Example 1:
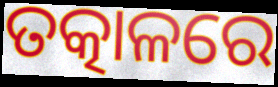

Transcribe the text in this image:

ତତ୍କାଳରେ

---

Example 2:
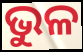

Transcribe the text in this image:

ଭୁଳ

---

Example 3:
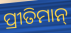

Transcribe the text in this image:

ପ୍ରୀତିମାନ୍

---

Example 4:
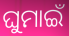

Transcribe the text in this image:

ଘୁମାଇଁ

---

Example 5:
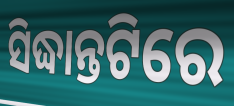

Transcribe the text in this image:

ସିଦ୍ଧାନ୍ତଟିରେ